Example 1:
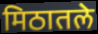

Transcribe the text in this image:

मिठातले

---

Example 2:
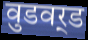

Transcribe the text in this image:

वुडवर्ड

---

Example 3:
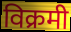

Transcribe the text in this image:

विक्रमी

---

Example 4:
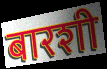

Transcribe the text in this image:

बारशी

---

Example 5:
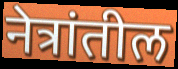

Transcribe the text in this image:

नेत्रांतील